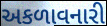
અકળાવનારી